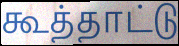
கூத்தாட்டு